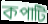
কপাটি